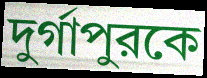
দুর্গাপুরকে